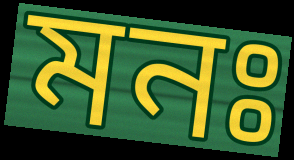
মনঃ